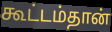
கூட்டம்தான்